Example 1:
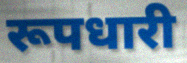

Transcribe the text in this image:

रूपधारी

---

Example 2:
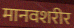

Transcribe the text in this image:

मानवशरीर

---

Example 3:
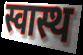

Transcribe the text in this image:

स्वास्थ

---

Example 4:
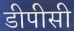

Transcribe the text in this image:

डीपीसी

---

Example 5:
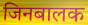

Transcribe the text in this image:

जिनबालक